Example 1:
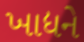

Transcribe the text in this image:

ખાદ્યને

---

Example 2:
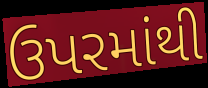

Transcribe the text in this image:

ઉપરમાંથી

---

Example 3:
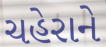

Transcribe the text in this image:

ચહેરાને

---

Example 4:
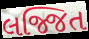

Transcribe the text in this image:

લજ્જિત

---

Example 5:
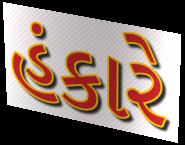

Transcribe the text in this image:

હંકારે